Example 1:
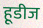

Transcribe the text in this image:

हूडीज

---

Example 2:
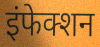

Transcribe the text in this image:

इंफेक्शन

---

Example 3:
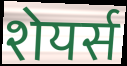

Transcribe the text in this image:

शेयर्स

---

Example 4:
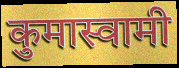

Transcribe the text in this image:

कुमास्वामी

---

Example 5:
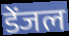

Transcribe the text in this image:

डेंजल